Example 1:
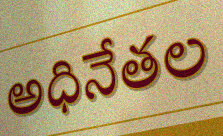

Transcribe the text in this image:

అధినేతల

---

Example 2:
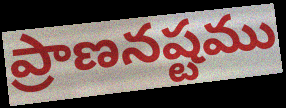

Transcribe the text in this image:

ప్రాణనష్టము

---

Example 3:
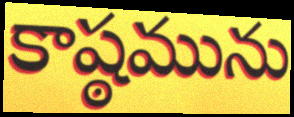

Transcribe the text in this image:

కాష్ఠమును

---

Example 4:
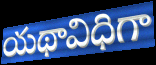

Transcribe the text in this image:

యథావిధిగా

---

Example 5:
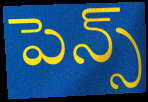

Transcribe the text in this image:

పెన్స్